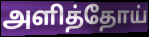
அளித்தோய்